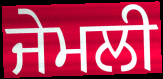
ਜੇਮਲੀ